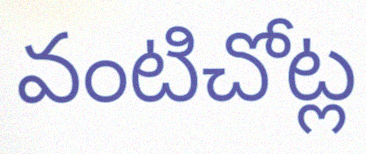
వంటిచోట్ల